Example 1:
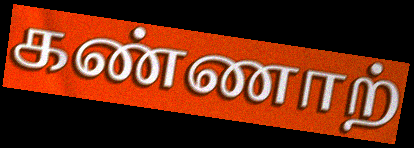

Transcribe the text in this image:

கண்ணாற்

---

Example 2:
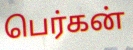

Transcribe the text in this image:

பெர்கன்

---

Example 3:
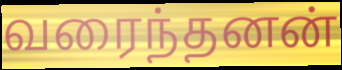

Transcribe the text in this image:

வரைந்தனன்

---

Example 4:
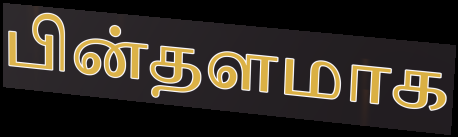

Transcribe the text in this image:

பின்தளமாக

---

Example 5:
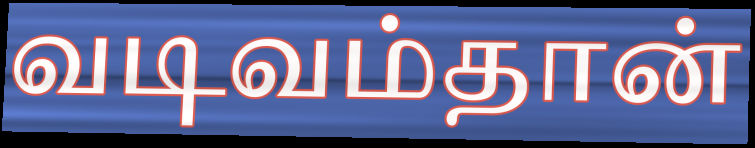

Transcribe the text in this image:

வடிவம்தான்